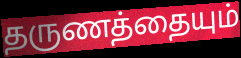
தருணத்தையும்